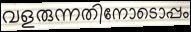
വളരുന്നതിനോടൊപ്പം